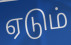
ஏடும்